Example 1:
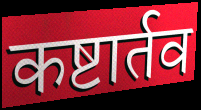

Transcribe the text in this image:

कष्टार्तव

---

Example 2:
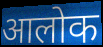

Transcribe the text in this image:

आलोक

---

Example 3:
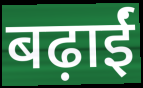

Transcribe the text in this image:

बढ़ाईं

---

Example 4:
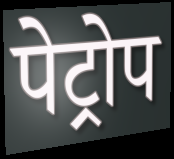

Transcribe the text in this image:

पेट्रोप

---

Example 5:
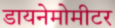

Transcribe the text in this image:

डायनेमोमीटर